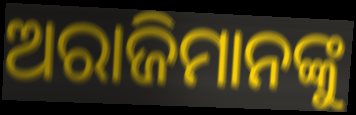
ଅରାଜିମାନଙ୍କୁ